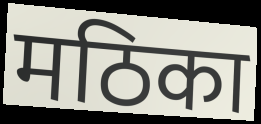
मठिका